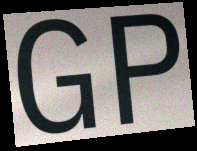
GP